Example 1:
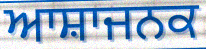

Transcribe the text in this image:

ਆਸ਼ਾਜਨਕ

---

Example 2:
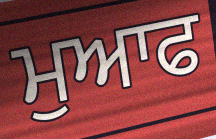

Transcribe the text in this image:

ਮੁਆਫ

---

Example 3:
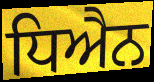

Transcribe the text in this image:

ਧਿਐਨ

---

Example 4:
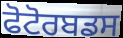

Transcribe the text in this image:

ਫੋਟੋਰਬਡਸ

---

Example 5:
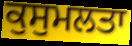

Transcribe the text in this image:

ਕੁਸੁਮਲਤਾ